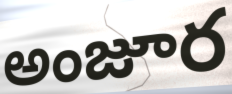
అంజూర